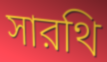
সারথি